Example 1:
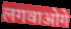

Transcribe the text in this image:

लगवाओगे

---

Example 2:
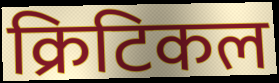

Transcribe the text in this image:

क्रिटिकल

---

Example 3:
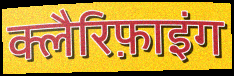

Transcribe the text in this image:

क्लैरिफ़ाइंग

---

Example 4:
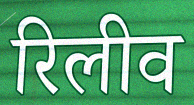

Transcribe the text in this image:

रिलीव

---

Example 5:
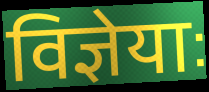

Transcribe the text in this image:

विज्ञेयाः